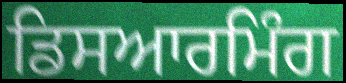
ਡਿਸਆਰਮਿੰਗ